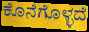
ಕೊನೆಗೊಳ್ಳದೆ